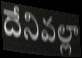
దేనివల్లా